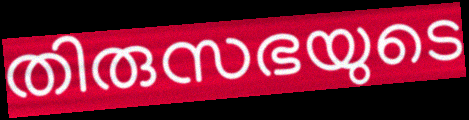
തിരുസഭയുടെ